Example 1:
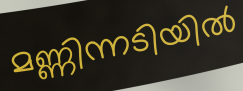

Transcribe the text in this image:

മണ്ണിന്നടിയിൽ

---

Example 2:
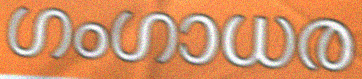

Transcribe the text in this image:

ഗംഗാധര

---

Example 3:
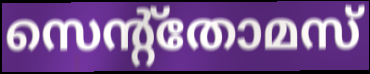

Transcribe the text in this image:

സെന്റ്തോമസ്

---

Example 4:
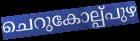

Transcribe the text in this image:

ചെറുകോല്പ്പുഴ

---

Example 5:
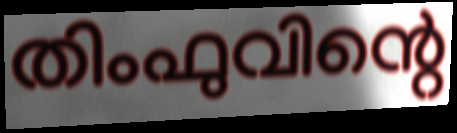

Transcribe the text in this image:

തിംഫുവിന്റെ